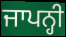
ਜਾਪਨ੍ਹੀ